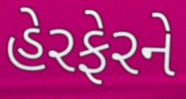
હેરફેરને